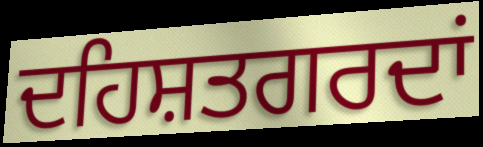
ਦਹਿਸ਼ਤਗਰਦਾਂ